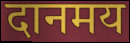
दानमय